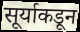
सूर्याकडून